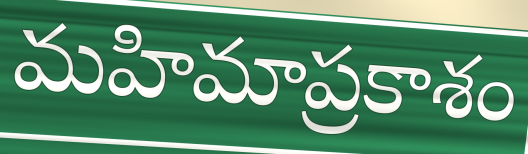
మహిమాప్రకాశం